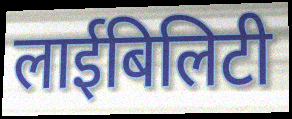
लाईबिलिटी